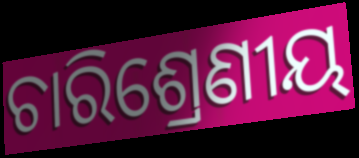
ଚାରିଶ୍ରେଣୀୟ